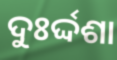
ଦୁଃର୍ଦ୍ଦଶା